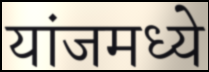
यांजमध्ये